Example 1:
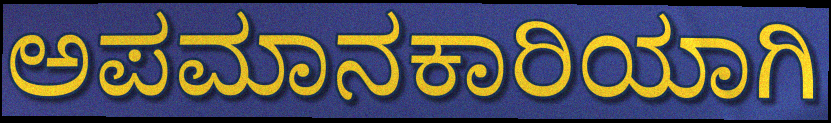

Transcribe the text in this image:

ಅಪಮಾನಕಾರಿಯಾಗಿ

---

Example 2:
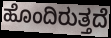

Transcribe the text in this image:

ಹೊಂದಿರುತ್ತದೆ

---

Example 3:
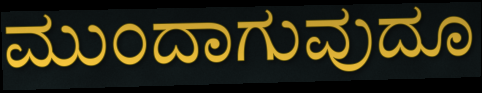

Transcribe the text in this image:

ಮುಂದಾಗುವುದೂ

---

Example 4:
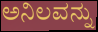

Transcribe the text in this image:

ಅನಿಲವನ್ನು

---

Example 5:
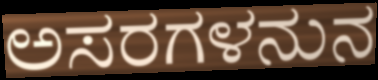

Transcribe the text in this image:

ಅಸರಗಳನುನ